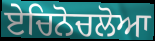
ਏਚਿਨੋਚਲੋਆ